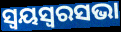
ସ୍ୱୟସ୍ୱରସଭା